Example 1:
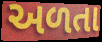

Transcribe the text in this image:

અળતા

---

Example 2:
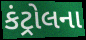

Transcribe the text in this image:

કંટ્રોલના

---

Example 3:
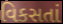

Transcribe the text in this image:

વિકસતાં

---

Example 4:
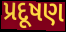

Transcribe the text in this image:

પ્રદૂષણ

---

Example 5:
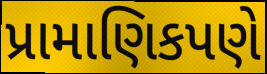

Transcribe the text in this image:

પ્રામાણિકપણે